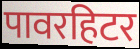
पावरहिटर